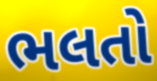
ભલતો